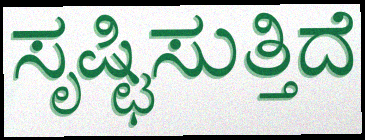
ಸೃಷ್ಟಿಸುತ್ತಿದೆ